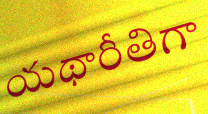
యథారీతిగా